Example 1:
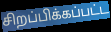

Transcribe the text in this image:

சிறப்பிக்கப்பட்ட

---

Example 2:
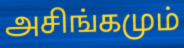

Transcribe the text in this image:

அசிங்கமும்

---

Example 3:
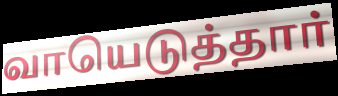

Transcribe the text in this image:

வாயெடுத்தார்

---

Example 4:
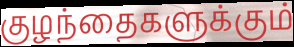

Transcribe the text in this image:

குழந்தைகளுக்கும்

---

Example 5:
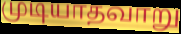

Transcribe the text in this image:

முடியாதவாறு